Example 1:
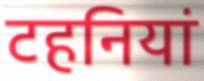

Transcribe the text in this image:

टहनियां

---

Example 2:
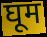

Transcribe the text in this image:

घूम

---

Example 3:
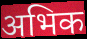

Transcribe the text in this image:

अभिक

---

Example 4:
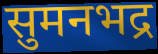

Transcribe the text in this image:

सुमनभद्र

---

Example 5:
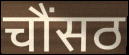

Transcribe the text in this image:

चौंसठ